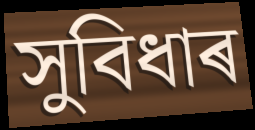
সুবিধাৰ